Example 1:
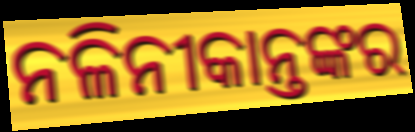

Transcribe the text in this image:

ନଳିନୀକାନ୍ତଙ୍କର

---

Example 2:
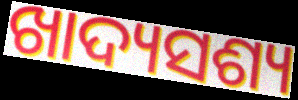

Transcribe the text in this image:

ଖାଦ୍ୟସଶ୍ୟ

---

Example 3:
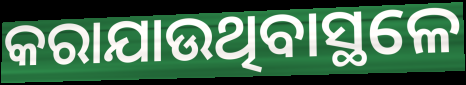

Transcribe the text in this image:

କରାଯାଉଥିବାସ୍ଥଳେ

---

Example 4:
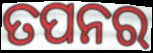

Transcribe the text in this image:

ତପନର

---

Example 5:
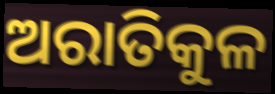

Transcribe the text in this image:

ଅରାତିକୁଳ